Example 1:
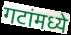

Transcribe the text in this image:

गटांमध्ये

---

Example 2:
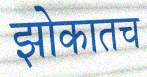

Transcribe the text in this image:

झोकातच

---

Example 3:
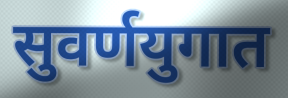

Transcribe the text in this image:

सुवर्णयुगात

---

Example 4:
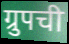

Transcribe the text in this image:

ग्रुपची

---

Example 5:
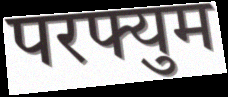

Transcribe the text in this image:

परफ्युम